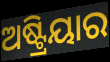
ଅଷ୍ଟ୍ରିୟାର